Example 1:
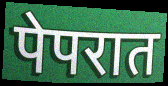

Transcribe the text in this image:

पेपरात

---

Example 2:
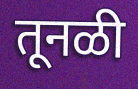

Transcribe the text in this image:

तूनळी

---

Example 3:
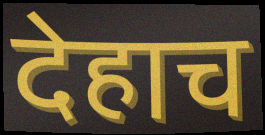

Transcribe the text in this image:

देहाच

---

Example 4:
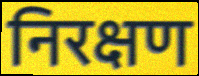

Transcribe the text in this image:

निरक्षण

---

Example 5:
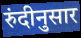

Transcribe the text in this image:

रुंदीनुसार